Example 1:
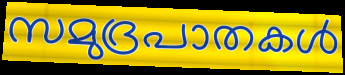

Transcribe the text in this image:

സമുദ്രപാതകൾ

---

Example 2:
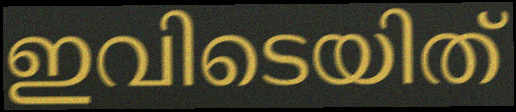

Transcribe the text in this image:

ഇവിടെയിത്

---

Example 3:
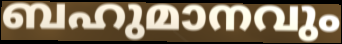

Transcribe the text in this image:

ബഹുമാനവും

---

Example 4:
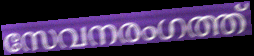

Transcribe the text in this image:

സേവനരംഗത്ത്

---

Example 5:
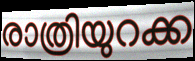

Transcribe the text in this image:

രാത്രിയുറക്ക